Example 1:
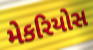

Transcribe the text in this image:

મેકરિયોસ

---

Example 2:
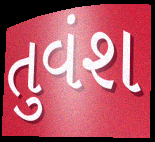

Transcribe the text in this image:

તુવંશ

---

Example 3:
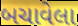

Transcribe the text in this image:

બચાવેલા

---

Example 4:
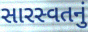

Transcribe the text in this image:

સારસ્વતનું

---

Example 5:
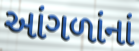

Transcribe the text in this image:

આંગળાંનાં